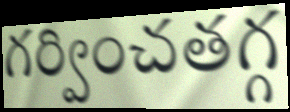
గర్వించతగ్గ